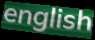
english